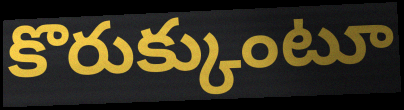
కొరుక్కుంటూ